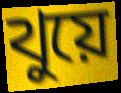
থুয়ে